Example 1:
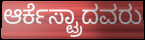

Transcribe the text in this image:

ಆರ್ಕೆಸ್ಟ್ರಾದವರು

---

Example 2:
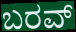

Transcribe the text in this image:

ಬರವ್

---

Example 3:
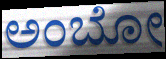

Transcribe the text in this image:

ಅಂಬೋ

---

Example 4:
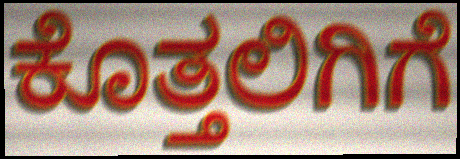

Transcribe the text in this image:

ಕೊತ್ತಲಿಗಿಗೆ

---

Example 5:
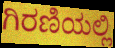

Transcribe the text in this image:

ಗಿರಣಿಯಲ್ಲಿ